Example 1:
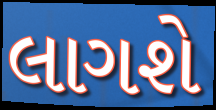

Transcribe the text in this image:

લાગશે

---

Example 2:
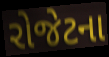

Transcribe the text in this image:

રોજેટના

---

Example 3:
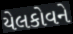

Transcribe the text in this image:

યેલકોવને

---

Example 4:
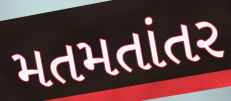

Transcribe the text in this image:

મતમતાંતર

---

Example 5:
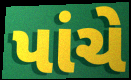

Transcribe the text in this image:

પાંચે